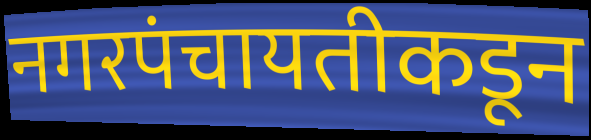
नगरपंचायतीकडून